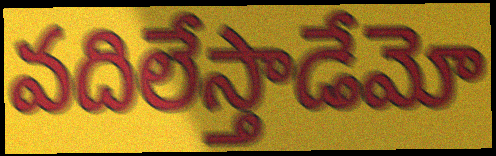
వదిలేస్తాడేమో